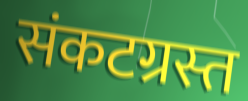
संकटग्रस्‍त